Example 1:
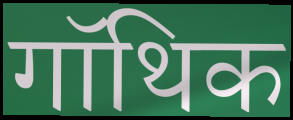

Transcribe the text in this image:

गॉथिक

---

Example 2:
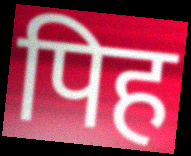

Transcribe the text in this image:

पिह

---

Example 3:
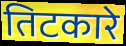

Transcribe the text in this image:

तिटकारे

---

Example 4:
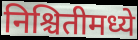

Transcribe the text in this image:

निश्चितीमध्ये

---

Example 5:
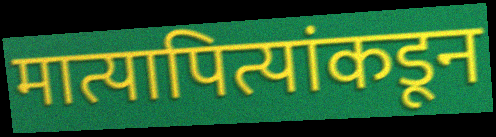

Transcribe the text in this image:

मात्यापित्यांकडून